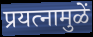
प्रयत्नामुळें